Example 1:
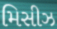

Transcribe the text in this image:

મિસીઝ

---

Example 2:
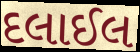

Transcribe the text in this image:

દલાઈલ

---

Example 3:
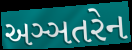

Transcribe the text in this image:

અઞ્ઞતરેન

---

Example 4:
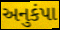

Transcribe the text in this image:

અનુકંપા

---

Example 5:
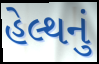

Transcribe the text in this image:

હેલ્થનું